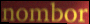
nombor